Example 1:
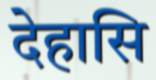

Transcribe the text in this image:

देहासि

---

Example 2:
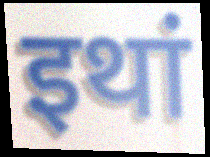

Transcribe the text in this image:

इथां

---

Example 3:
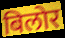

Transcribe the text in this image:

बिलोर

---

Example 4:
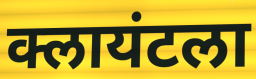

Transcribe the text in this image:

क्लायंटला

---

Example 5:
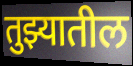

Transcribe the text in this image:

तुझ्यातील